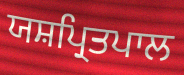
ਯਸ਼ਪ੍ਰਿਤਪਾਲ